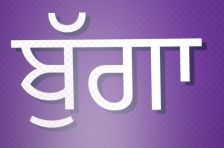
ਬੁੱਗਾ